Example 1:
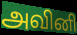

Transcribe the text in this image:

அவினி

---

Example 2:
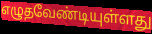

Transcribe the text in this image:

எழுதவேண்டியுள்ளது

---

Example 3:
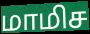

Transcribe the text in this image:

மாமிச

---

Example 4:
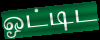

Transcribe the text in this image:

ஓட்டிட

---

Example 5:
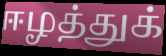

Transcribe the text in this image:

ஈழத்துக்